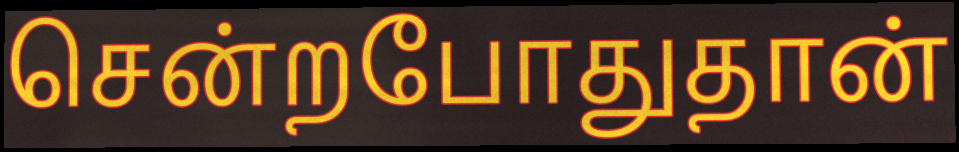
சென்றபோதுதான்